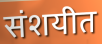
संशयीत